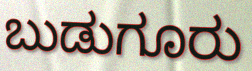
ಬುಡುಗೂರು